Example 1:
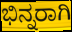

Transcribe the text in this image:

ಭಿನ್ನರಾಗಿ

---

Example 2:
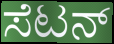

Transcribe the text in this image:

ಸೆಟನ್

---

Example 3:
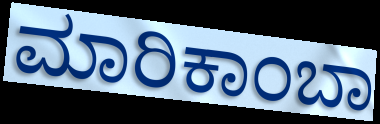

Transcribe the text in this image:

ಮಾರಿಕಾಂಬಾ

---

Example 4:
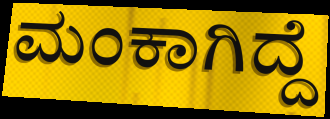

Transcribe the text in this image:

ಮಂಕಾಗಿದ್ದೆ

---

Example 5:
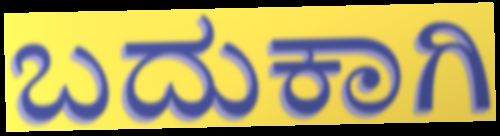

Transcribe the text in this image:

ಬದುಕಾಗಿ